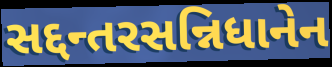
સદ્દન્તરસન્નિધાનેન